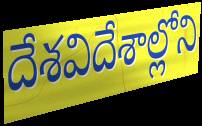
దేశవిదేశాల్లోని